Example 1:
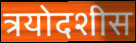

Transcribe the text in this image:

त्रयोदशीस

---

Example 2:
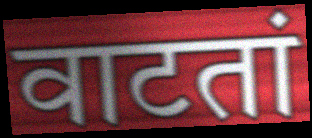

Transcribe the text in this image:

वाटतां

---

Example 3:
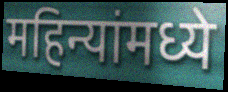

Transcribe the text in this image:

महिन्यांमध्ये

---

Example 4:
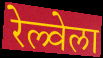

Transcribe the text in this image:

रेल्वेला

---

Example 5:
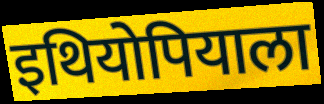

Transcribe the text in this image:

इथियोपियाला